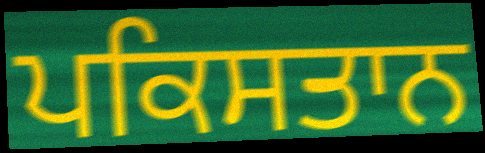
ਪਕਿਸਤਾਨ